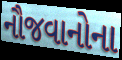
નૌજવાનોના